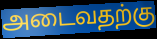
அடைவதற்கு